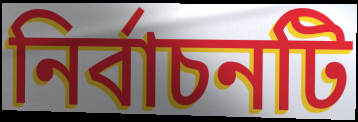
নির্বাচনটি